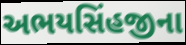
અભયસિંહજીના